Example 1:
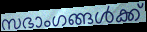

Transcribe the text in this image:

സഭാംഗങ്ങൾക്ക്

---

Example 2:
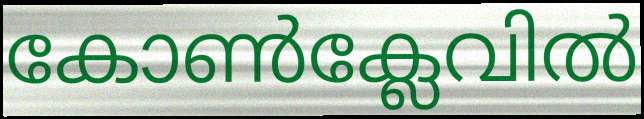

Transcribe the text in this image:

കോൺക്ലേവിൽ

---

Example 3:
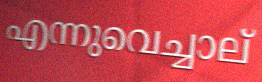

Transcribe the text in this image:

എന്നുവെച്ചാല്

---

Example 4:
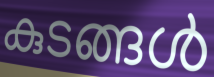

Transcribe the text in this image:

കുടങ്ങൾ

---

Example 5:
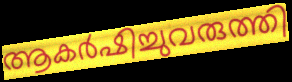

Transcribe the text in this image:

ആകർഷിച്ചുവരുത്തി